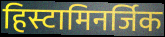
हिस्टामिनर्जिक